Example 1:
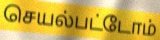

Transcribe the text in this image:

செயல்பட்டோம்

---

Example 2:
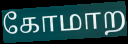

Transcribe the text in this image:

கோமாற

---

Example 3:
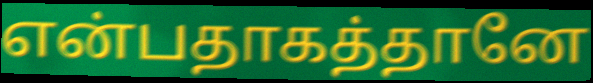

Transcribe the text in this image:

என்பதாகத்தானே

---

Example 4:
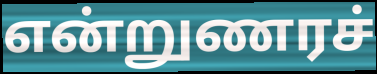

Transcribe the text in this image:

என்றுணரச்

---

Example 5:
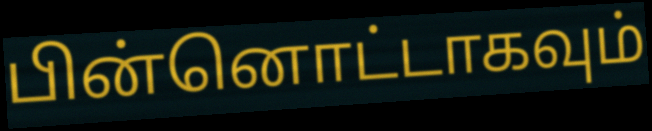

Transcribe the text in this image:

பின்னொட்டாகவும்